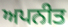
ਅਪਨੀਤ